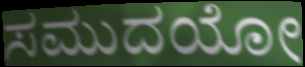
ಸಮುದಯೋ